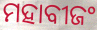
ମହାବୀଜଂ